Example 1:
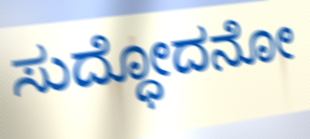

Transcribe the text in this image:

ಸುದ್ಧೋದನೋ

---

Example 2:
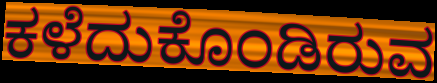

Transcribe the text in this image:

ಕಳೆದುಕೊಂಡಿರುವ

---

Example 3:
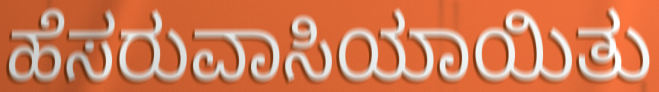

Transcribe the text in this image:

ಹೆಸರುವಾಸಿಯಾಯಿತು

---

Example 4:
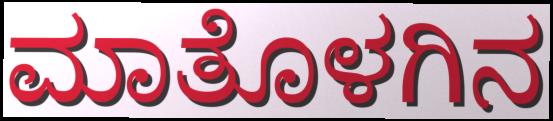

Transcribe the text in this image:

ಮಾತೊಳಗಿನ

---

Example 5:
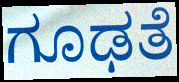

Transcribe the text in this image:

ಗೂಢತೆ